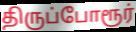
திருப்போரூர்